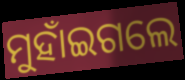
ମୁହାଁଇଗଲେ